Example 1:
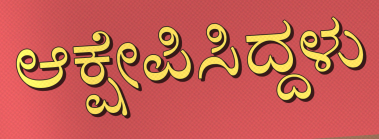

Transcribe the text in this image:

ಆಕ್ಷೇಪಿಸಿದ್ದಳು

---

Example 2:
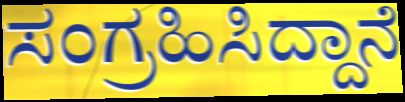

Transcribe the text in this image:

ಸಂಗ್ರಹಿಸಿದ್ದಾನೆ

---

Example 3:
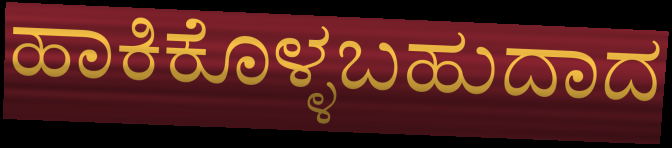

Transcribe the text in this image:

ಹಾಕಿಕೊಳ್ಳಬಹುದಾದ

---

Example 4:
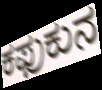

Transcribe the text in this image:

ಕಫುಕುನ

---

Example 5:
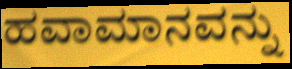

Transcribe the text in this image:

ಹವಾಮಾನವನ್ನು